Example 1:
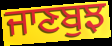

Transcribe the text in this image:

ਜਾਣਬੁਝ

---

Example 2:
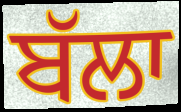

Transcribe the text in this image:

ਬੱਲਾ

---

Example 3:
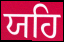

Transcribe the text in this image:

ਯਹਿ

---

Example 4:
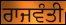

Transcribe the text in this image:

ਰਾਜਵੰਤੀ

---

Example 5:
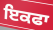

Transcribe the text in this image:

ਇਕਫਾ